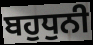
ਬਹੁਧੁਨੀ